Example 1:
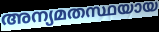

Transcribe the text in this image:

അന്യമതസ്ഥയായ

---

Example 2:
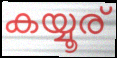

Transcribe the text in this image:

കയ്യൂര്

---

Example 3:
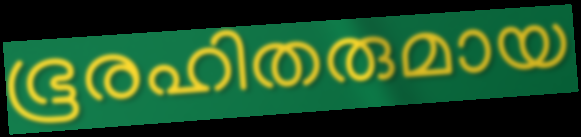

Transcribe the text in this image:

ഭൂരഹിതരുമായ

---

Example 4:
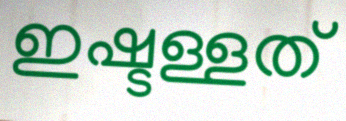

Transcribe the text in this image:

ഇഷ്ടള്ളത്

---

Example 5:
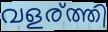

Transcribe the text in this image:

വളര്ത്തി